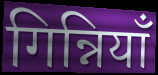
गिन्नियाँ